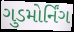
ગુડમોર્નિંગ